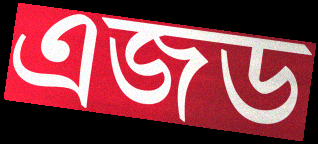
এজড